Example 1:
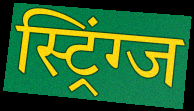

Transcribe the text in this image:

स्ट्रिंग्ज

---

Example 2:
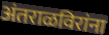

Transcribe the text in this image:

अंतराळविरांना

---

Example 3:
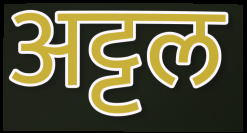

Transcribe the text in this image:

अट्टल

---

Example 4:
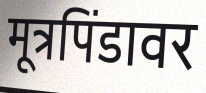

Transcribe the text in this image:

मूत्रपिंडावर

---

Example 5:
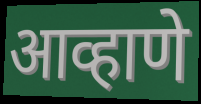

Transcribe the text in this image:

आव्हाणे